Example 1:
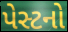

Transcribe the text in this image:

પેસ્ટનો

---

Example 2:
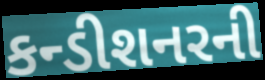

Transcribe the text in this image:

કન્ડીશનરની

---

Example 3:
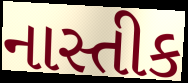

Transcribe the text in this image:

નાસ્તીક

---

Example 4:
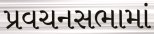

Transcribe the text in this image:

પ્રવચનસભામાં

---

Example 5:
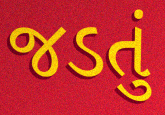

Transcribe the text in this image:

જડતું